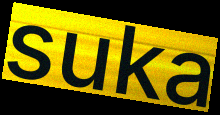
suka